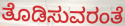
ತೊಡಿಸುವರಂತೆ